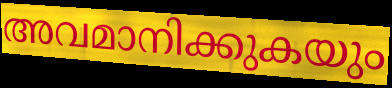
അവമാനിക്കുകയും